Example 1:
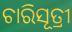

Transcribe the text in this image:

ଚାରିସୂତ୍ରୀ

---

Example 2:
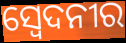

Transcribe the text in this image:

ସ୍ୱେଦନୀର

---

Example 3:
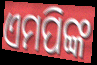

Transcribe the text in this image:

ଏମପିଙ୍କ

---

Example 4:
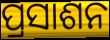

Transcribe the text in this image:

ପ୍ରସାଶନ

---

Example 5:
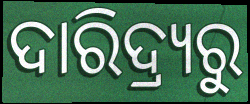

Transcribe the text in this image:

ଦାରିଦ୍ର୍ୟରୁ